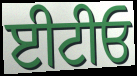
ਈਟੀਓ